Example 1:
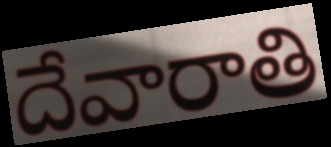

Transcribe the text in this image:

దేవారాతి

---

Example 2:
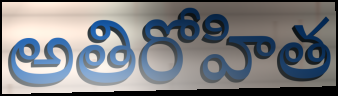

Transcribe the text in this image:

అతిరోహిత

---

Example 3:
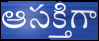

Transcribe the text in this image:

ఆసక్తిగా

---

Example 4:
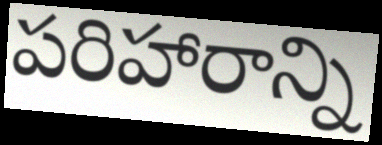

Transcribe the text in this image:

పరిహారాన్ని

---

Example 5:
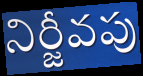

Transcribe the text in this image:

నిర్జీవపు